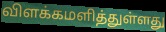
விளக்கமளித்துள்ளது